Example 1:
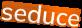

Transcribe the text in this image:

seduce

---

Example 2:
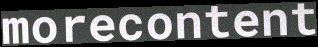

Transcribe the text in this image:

morecontent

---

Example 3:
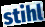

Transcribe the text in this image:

stihl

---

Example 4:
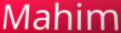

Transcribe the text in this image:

Mahim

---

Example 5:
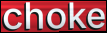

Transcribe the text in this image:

choke